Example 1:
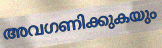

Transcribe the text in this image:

അവഗണിക്കുകയും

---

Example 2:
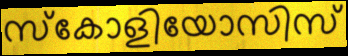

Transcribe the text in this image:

സ്കോളിയോസിസ്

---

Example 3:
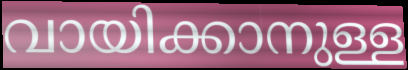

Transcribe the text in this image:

വായിക്കാനുള്ള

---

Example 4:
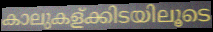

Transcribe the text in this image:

കാലുകള്ക്കിടയിലൂടെ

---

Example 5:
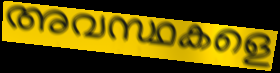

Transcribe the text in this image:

അവസ്ഥകളെ